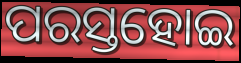
ପରସ୍ତହୋଇ